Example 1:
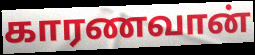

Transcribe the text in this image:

காரணவான்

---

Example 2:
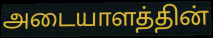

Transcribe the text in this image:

அடையாளத்தின்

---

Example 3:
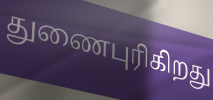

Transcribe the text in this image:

துணைபுரிகிறது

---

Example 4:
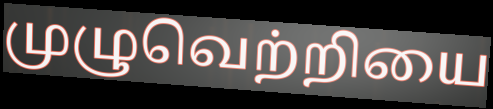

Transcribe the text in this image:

முழுவெற்றியை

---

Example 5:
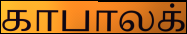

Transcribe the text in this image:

காபாலக்